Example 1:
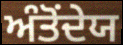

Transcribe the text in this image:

ਅੰਤੋਂਦੇਯ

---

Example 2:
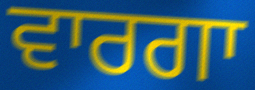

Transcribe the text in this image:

ਵਾਰਗਾ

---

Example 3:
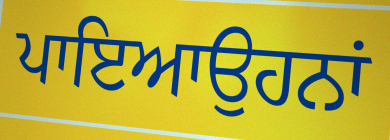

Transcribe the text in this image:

ਪਾਇਆਉਹਨਾਂ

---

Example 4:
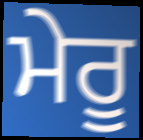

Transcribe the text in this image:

ਮੇਰੂ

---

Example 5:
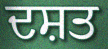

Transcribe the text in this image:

ਦਸ਼ਤ